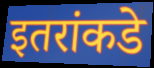
इतरांकडे